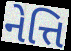
નેત્તિ